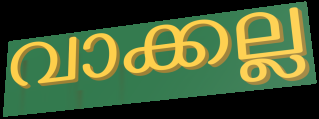
വാക്കല്ല